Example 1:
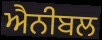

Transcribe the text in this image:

ਐਨੀਬਲ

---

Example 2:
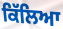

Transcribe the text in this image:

ਕਿੱਲਿਆ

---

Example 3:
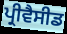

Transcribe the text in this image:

ਪ੍ਰੀਵੈਸੀਡ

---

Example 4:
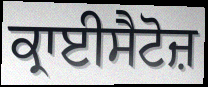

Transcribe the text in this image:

ਕ੍ਰਾਈਸੈਟੋਜ਼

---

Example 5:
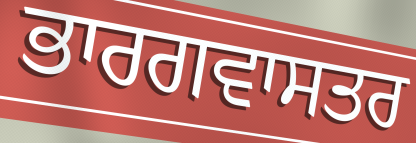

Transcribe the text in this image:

ਭਾਰਗਵਾਸਤਰ